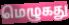
மெழுகது